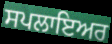
ਸਪਲਾਇਅਰ